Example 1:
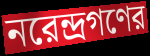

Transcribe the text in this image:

নরেন্দ্রগণের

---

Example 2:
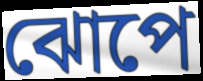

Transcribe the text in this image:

ঝোপে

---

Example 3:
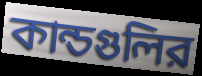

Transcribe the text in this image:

কান্ডগুলির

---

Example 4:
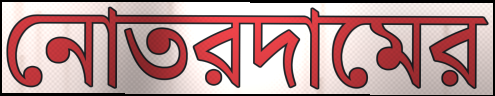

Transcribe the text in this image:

নোতরদামের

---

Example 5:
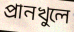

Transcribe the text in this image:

প্রানখুলে